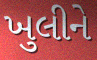
ખુલીને